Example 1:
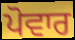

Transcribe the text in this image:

ਪੋਵਾਰ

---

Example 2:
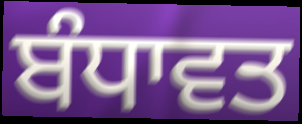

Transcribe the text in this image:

ਬੰਧਾਵਤ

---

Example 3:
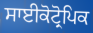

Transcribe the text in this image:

ਸਾਈਕੋਟ੍ਰੋਪਿਕ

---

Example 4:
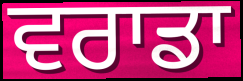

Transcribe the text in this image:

ਵਰਾਡਾ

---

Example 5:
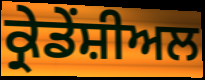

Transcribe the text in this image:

ਕ੍ਰੇਡੇਂਸ਼ੀਅਲ